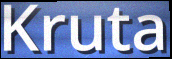
Kruta